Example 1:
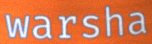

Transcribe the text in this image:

warsha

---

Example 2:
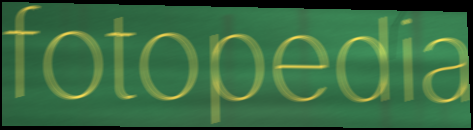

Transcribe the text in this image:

fotopedia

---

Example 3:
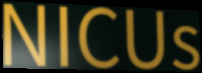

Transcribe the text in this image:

NICUs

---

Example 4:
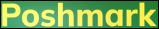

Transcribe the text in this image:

Poshmark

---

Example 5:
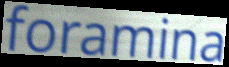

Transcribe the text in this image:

foramina